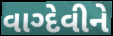
વાગ્દેવીને